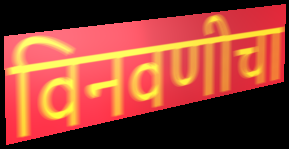
विनवणीचा